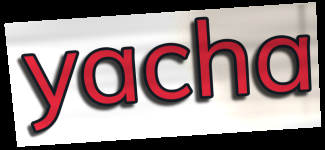
yacha